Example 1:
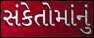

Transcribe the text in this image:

સંકેતોમાંનું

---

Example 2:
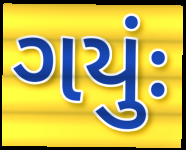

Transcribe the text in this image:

ગયુંઃ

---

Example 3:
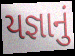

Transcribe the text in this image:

યજ્ઞાનું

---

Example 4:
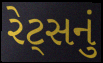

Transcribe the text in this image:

રેટ્સનું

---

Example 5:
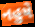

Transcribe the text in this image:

નહુષે